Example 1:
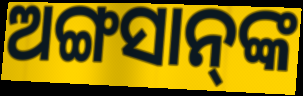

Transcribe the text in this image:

ଅଙ୍ଗସାନ୍‌ଙ୍କ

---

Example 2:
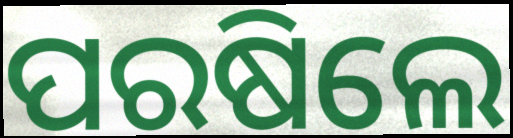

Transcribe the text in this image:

ପରଷିଲେ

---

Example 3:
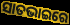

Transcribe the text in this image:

ସାତଭାଇରେ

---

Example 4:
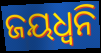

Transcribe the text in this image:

ଜୟଧ୍ୱନି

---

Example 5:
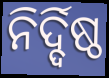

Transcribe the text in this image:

ନିର୍ଦ୍ଦିଷ୍ଠ